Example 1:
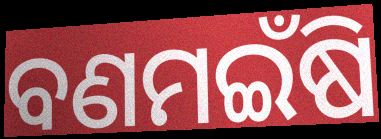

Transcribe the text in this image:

ବଣମଇଁଷି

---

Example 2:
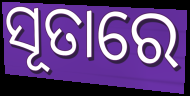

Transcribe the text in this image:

ସୂତାରେ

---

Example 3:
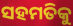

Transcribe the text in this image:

ସହମତିକୁ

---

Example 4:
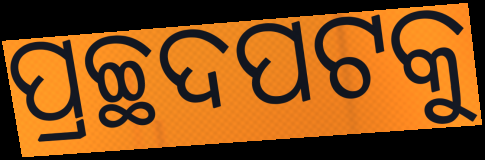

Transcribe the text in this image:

ପ୍ରଚ୍ଛଦପଟକୁ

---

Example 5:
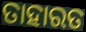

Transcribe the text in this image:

ତାହାରତ